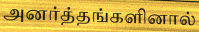
அனர்த்தங்களினால்